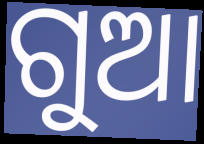
ଗୁଆ